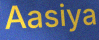
Aasiya